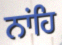
ਨਾਂਹਿ